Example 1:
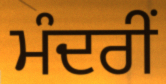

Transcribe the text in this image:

ਮੰਦਰੀਂ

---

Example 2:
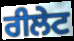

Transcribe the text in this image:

ਰੀਲੇਟ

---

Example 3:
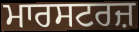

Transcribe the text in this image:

ਮਾਰਸਟਰਜ਼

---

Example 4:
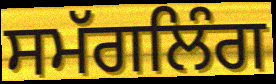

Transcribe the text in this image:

ਸਮੱਗਲਿੰਗ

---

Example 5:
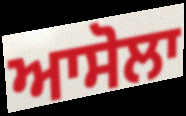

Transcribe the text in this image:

ਆਸੋਲਾ